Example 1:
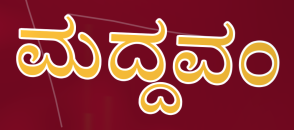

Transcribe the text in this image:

ಮದ್ದವಂ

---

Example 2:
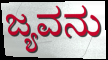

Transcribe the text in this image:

ಜ್ಯವನು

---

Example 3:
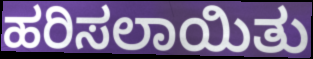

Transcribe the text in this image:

ಹರಿಸಲಾಯಿತು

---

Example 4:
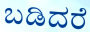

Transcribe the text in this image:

ಬಡಿದರೆ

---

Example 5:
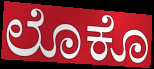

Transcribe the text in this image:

ಲೊಕೊ